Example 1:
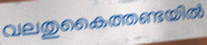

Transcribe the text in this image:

വലതുകൈത്തണ്ടയിൽ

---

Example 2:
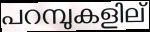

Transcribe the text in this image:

പറമ്പുകളില്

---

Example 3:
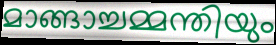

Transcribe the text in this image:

മാങ്ങാച്ചമ്മന്തിയും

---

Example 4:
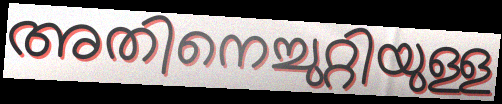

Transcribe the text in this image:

അതിനെച്ചുറ്റിയുള്ള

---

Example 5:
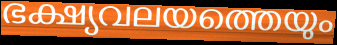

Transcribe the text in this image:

ഭക്ഷ്യവലയത്തെയും